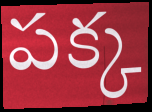
పక్క